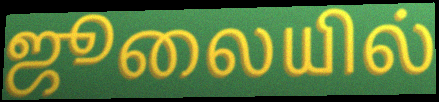
ஜூலையில்